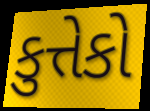
કુત્તેકો